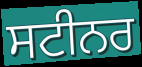
ਸਟੀਨਰ